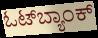
ಓಟ್‌ಬ್ಯಾಂಕ್